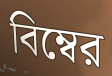
বিম্বের